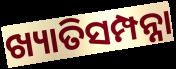
ଖ୍ୟାତିସମ୍ପନ୍ନା